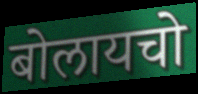
बोलायचो